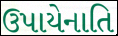
ઉપાયેનાતિ